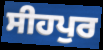
ਸੀਹਪੁਰ